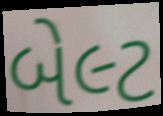
બેલ્ટ